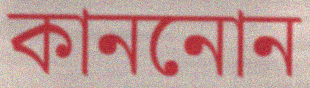
কাননোন